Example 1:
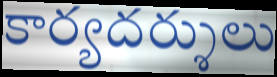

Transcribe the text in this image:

కార్యదర్శులు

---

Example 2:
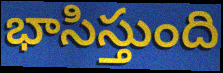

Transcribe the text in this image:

భాసిస్తుంది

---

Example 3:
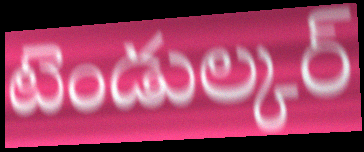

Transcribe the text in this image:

టెండుల్కర్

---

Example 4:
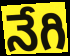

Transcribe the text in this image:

నేగి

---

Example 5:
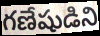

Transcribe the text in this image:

గణేషుడిని